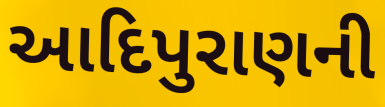
આદિપુરાણની